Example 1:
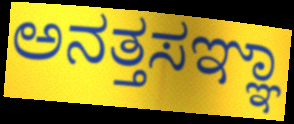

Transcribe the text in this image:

ಅನತ್ತಸಞ್ಞಾ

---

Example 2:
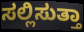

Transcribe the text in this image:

ಸಲ್ಲಿಸುತ್ತಾ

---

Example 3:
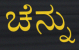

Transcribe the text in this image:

ಚೆನ್ನು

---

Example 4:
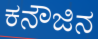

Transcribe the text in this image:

ಕನೌಜಿನ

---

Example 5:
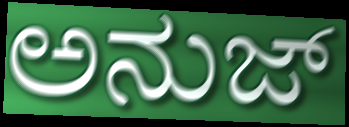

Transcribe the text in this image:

ಅನುಜ್